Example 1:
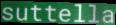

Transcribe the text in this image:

suttella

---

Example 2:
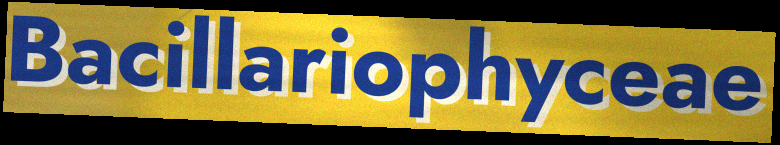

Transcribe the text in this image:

Bacillariophyceae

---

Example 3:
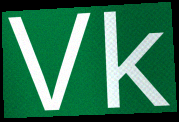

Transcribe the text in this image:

Vk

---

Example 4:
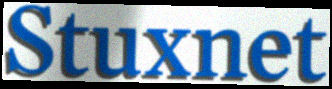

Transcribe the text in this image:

Stuxnet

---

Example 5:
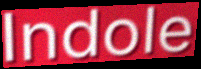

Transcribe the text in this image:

Indole